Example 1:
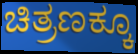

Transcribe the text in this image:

ಚಿತ್ರಣಕ್ಕೂ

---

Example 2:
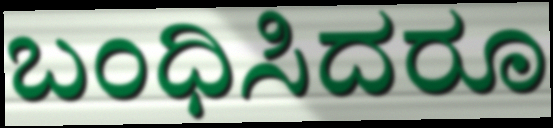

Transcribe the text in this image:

ಬಂಧಿಸಿದರೂ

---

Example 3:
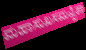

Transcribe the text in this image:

ಮಹಾಸುಖಸಮಪ್ಪಿತಾ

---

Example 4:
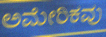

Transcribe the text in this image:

ಅಮೇರಿಕವು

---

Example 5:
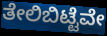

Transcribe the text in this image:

ತೇಲಿಬಿಟ್ಟೆವೇ